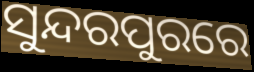
ସୁନ୍ଦରପୁରରେ